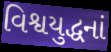
વિશ્વયુદ્ધનાં